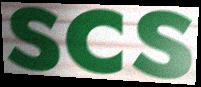
scs